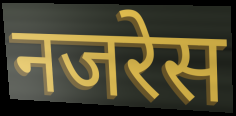
नजरेस